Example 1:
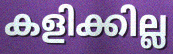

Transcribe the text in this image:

കളിക്കില്ല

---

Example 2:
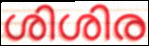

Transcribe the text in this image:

ശിശിര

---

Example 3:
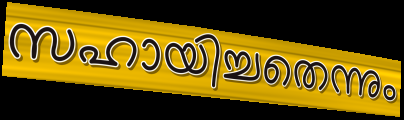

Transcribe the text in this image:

സഹായിച്ചതെന്നും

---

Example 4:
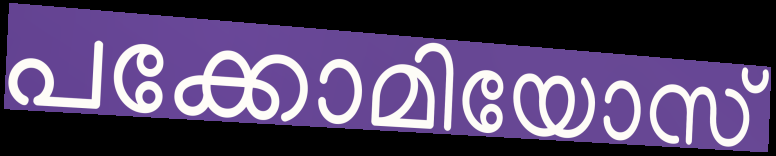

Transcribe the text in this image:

പക്കോമിയോസ്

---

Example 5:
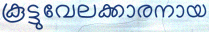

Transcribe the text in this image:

കൂട്ടുവേലക്കാരനായ